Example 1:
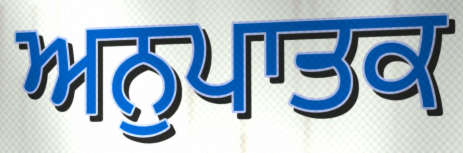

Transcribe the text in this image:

ਅਨੁਪਾਤਕ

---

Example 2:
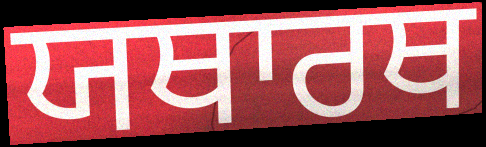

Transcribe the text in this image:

ਯਥਾਰਥ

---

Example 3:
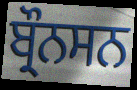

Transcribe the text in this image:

ਬ੍ਰੌਨਸਨ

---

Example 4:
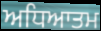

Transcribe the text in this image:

ਅਧਿਆਤਮ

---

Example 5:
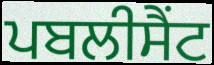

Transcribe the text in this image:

ਪਬਲੀਸੈਂਟ